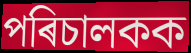
পৰিচালকক